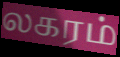
லகரம்